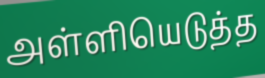
அள்ளியெடுத்த